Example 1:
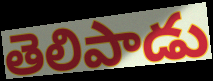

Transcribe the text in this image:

తెలిపాడు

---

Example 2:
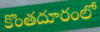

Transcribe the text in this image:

కొంతదూరంలో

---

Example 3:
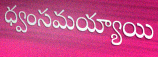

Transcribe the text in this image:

ధ్వంసమయ్యాయి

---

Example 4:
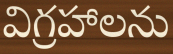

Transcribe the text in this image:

విగ్రహాలను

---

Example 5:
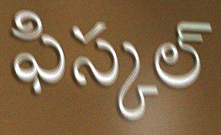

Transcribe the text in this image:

ఫిస్కల్